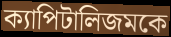
ক্যাপিটালিজমকে